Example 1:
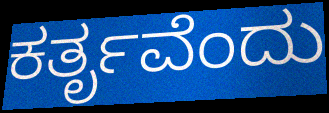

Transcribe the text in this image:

ಕರ್ತೃವೆಂದು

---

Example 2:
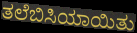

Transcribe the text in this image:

ತಲೆಬಿಸಿಯಾಯಿತು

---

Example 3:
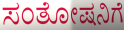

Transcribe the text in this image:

ಸಂತೋಷನಿಗೆ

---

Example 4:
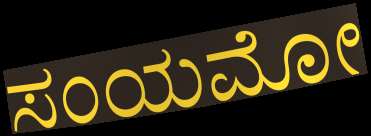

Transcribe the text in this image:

ಸಂಯಮೋ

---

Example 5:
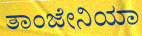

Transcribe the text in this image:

ತಾಂಜೇನಿಯಾ